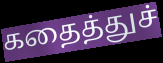
கதைத்துச்